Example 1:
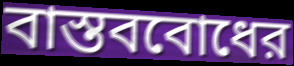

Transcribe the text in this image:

বাস্তববোধের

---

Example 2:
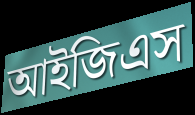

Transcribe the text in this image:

আইজিএস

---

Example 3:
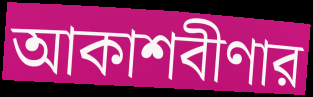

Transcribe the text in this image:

আকাশবীণার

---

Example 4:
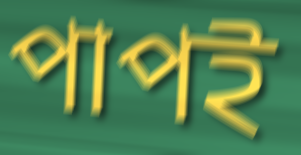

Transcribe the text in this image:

পাপই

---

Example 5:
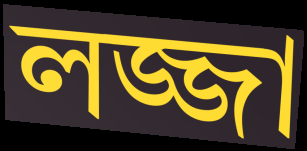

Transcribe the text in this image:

লজ্জা